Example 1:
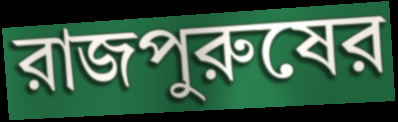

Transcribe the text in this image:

রাজপুরুষের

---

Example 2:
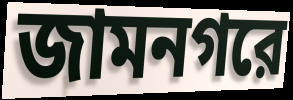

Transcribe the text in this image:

জামনগরে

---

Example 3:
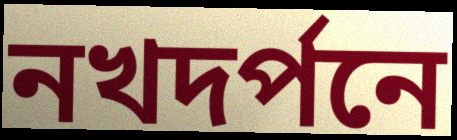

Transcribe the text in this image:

নখদর্পনে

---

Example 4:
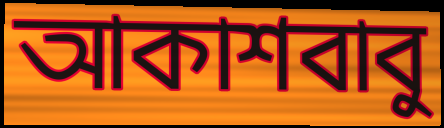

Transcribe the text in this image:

আকাশবাবু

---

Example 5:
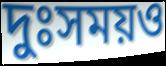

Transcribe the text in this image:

দুঃসময়ও